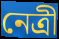
নেত্ৰী